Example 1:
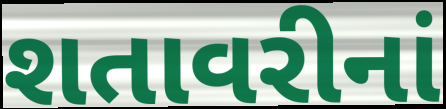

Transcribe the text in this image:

શતાવરીનાં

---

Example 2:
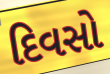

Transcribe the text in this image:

દિવસો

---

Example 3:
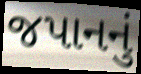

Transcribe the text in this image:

જપાનનું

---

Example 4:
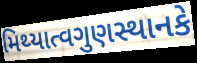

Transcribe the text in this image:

મિથ્યાત્વગુણસ્થાનકે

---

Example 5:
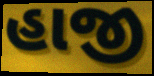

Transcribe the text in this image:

હાજી